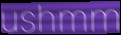
ushmm